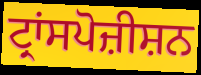
ਟ੍ਰਾਂਸਪੋਜ਼ੀਸ਼ਨ